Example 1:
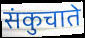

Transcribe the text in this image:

संकुचाते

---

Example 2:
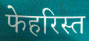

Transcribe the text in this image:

फेहरिस्त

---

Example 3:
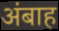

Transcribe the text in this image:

अंबाह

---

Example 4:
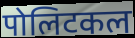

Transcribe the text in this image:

पोलिटकल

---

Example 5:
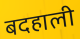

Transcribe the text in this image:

बदहाली